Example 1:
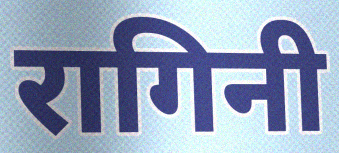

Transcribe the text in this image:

रागिनी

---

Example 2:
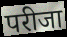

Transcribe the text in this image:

परीजा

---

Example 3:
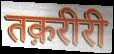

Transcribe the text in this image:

तक़रीरी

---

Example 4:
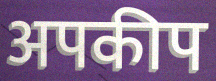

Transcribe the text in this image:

अपकीप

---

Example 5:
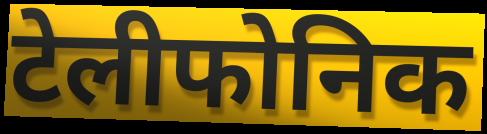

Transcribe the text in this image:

टेलीफोनिक